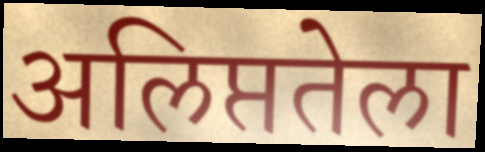
अलिप्ततेला